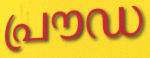
പ്രൗഡ